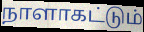
நாளாகட்டும்